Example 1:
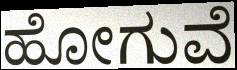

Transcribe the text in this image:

ಹೋಗುವೆ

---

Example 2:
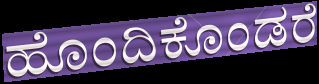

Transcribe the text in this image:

ಹೊಂದಿಕೊಂಡರೆ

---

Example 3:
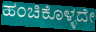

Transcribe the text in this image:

ಹಂಚಿಕೊಳ್ಳದೇ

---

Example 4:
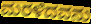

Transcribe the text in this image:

ಮರಳಿದವನು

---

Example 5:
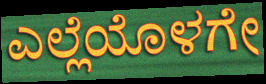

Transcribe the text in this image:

ಎಲ್ಲೆಯೊಳಗೇ